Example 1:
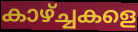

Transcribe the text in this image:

കാഴ്ച്ചകളെ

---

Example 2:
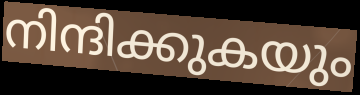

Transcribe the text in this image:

നിന്ദിക്കുകയും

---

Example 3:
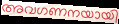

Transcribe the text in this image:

അവഗണനയായി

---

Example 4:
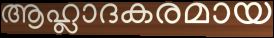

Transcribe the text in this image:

ആഹ്ലാദകരമായ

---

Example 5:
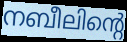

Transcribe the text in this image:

നബീലിന്റെ